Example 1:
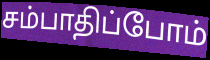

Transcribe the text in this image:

சம்பாதிப்போம்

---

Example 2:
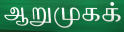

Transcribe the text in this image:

ஆறுமுகக்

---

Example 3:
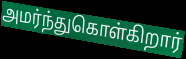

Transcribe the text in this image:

அமர்ந்துகொள்கிறார்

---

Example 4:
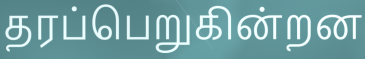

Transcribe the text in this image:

தரப்பெறுகின்றன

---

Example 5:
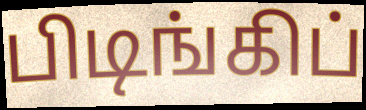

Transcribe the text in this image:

பிடிங்கிப்